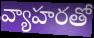
వ్యాహరతో